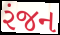
રંજન